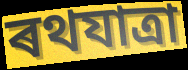
ৰথযাত্ৰা